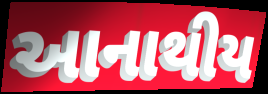
આનાથીય